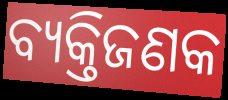
ବ୍ୟକ୍ତିଜଣକ